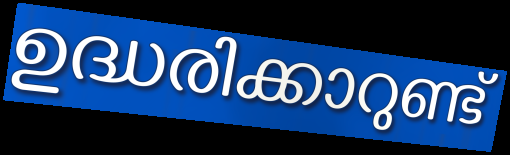
ഉദ്ധരിക്കാറുണ്ട്